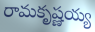
రామకృష్ణయ్య